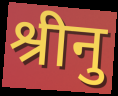
श्रीनु